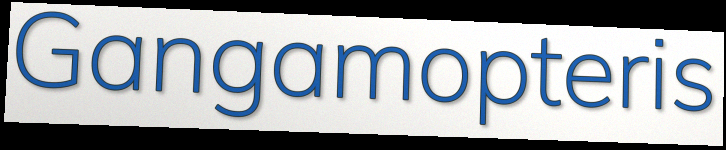
Gangamopteris